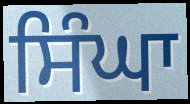
ਸਿੰਘਾ